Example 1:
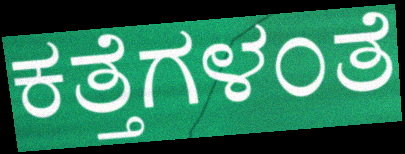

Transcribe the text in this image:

ಕತ್ತೆಗಳಂತೆ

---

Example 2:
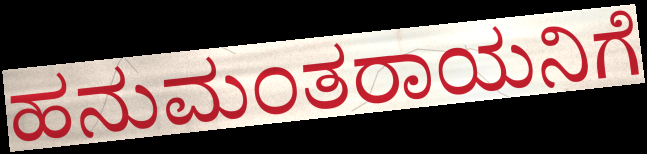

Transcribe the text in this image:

ಹನುಮಂತರಾಯನಿಗೆ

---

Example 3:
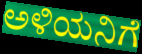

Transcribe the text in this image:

ಅಳಿಯನಿಗೆ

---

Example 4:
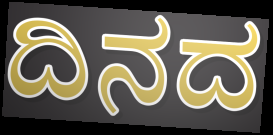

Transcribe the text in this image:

ದಿನದ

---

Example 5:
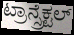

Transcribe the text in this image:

ಟ್ರಾನ್ಸ್ರೆಕ್ಟಲ್